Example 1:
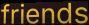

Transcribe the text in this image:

friends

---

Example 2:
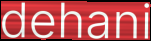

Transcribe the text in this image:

dehani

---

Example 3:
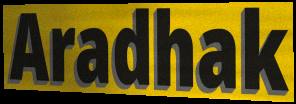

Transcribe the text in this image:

Aradhak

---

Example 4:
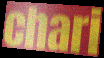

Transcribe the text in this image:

chari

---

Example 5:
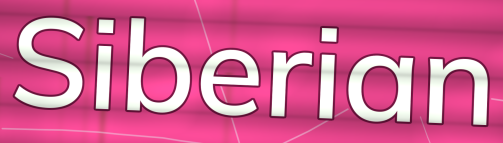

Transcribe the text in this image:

Siberian